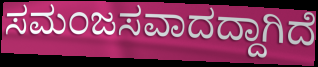
ಸಮಂಜಸವಾದದ್ದಾಗಿದೆ